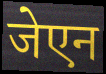
जेएन